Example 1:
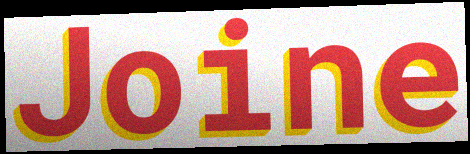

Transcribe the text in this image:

Joine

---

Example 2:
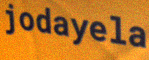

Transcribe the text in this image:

jodayela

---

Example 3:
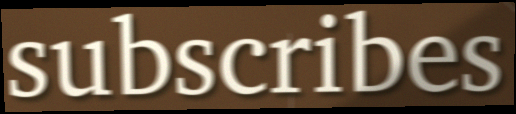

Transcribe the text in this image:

subscribes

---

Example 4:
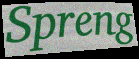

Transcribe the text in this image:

Spreng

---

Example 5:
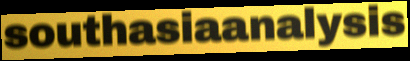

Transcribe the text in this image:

southasiaanalysis